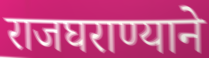
राजघराण्याने